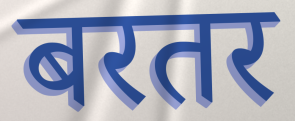
बरतर